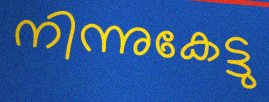
നിന്നുകേട്ടു